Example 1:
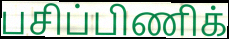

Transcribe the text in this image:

பசிப்பிணிக்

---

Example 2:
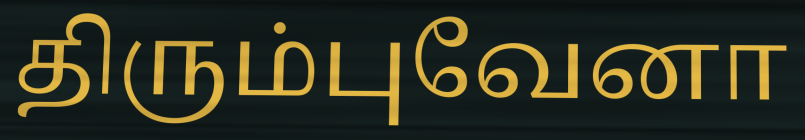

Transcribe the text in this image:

திரும்புவேனா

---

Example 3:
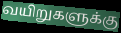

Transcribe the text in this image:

வயிறுகளுக்கு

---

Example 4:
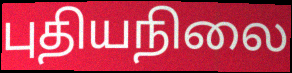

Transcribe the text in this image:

புதியநிலை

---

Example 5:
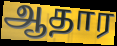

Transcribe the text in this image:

ஆதார